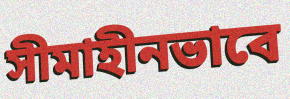
সীমাহীনভাবে